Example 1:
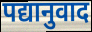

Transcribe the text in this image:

पद्यानुवाद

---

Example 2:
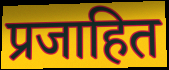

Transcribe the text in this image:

प्रजाहित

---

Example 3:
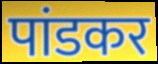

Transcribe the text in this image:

पांडकर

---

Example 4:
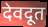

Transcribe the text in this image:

देवदूत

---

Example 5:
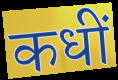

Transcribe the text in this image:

कधीं